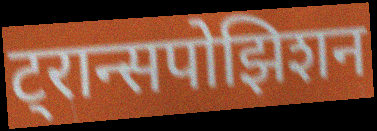
ट्रान्सपोझिशन